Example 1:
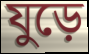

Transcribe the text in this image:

যুড়ে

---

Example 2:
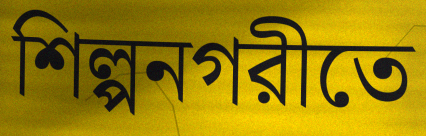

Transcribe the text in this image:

শিল্পনগরীতে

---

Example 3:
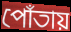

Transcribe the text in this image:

পোঁতায়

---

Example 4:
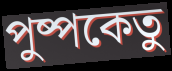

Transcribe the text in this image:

পুষ্পকেতু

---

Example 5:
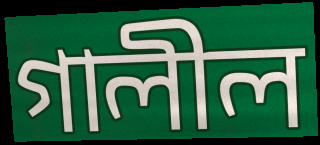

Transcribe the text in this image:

গালীল